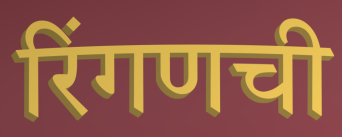
रिंगणची